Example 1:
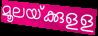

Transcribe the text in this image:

മൂലയ്‌ക്കുളള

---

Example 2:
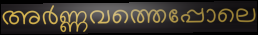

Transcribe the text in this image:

അർണ്ണവത്തെപ്പോലെ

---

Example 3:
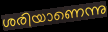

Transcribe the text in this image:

ശരിയാണെന്നു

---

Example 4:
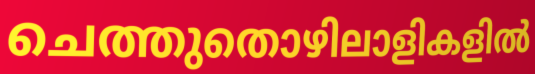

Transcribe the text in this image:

ചെത്തുതൊഴിലാളികളിൽ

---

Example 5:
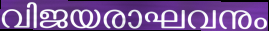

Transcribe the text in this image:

വിജയരാഘവനും